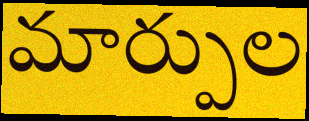
మార్పుల